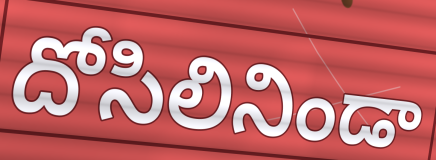
దోసిలినిండా